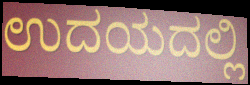
ಉದಯದಲ್ಲಿ